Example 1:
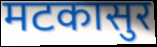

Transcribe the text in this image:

मटकासुर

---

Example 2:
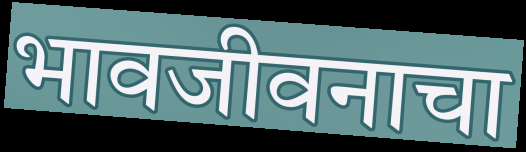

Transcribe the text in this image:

भावजीवनाचा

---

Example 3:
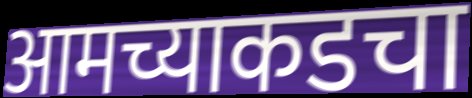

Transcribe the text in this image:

आमच्याकडचा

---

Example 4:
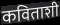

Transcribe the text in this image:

कविताशी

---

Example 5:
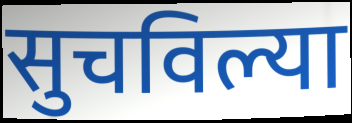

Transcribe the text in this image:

सुचविल्या